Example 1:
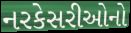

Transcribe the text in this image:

નરકેસરીઓનો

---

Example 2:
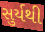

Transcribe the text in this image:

સુર્યથી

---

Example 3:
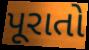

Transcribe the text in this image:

પૂરાતો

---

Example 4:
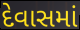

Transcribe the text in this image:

દેવાસમાં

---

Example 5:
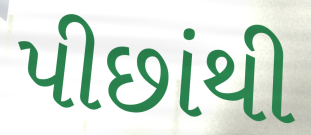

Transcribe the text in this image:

પીછાંથી